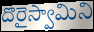
దొరైస్వామిని